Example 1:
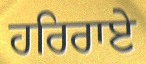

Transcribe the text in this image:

ਹਰਿਰਾਏ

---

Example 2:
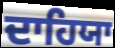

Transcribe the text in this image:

ਦਾਹਿਯਾ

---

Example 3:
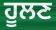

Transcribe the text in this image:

ਹੂਲਣ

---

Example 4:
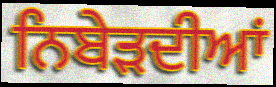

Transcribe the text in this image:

ਨਿਬੇੜਦੀਆਂ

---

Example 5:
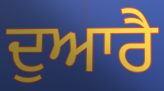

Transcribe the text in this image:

ਦੁਆਰੈ